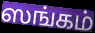
ஸங்கம்